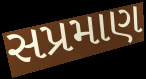
સપ્રમાણ